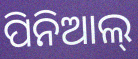
ପିନିଆଲ୍